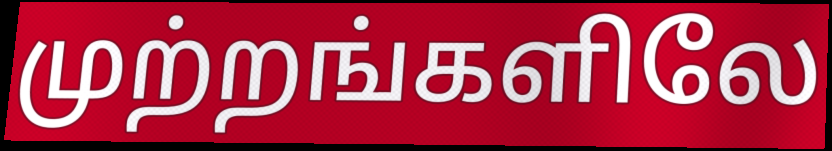
முற்றங்களிலே